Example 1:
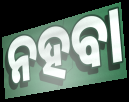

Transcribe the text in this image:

ନହବା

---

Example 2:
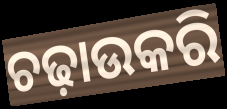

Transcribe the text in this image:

ଚଢ଼ାଉକରି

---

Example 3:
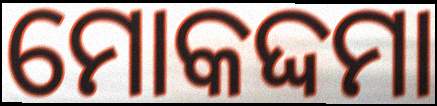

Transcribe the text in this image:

ମୋକଦ୍ଦମା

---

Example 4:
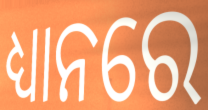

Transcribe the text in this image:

ଧ୍ୟାନରେ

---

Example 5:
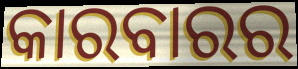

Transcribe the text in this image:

କାରବାରର